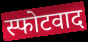
स्फोटवाद